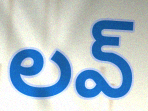
లవ్